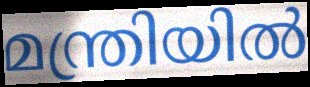
മന്ത്രിയിൽ